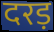
दरड़